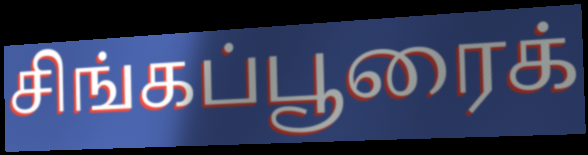
சிங்கப்பூரைக்